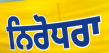
ਨਿਰੋਧਰਾ